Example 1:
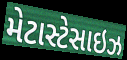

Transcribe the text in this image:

મેટાસ્ટેસાઇઝ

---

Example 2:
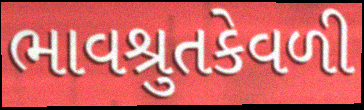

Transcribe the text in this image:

ભાવશ્રુતકેવળી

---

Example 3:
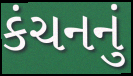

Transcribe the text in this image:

કંચનનું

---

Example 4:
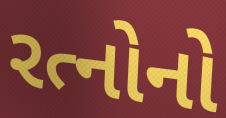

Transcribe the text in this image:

રત્નોનો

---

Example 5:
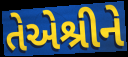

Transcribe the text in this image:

તેએશ્રીને